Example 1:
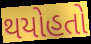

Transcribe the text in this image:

થયોહતો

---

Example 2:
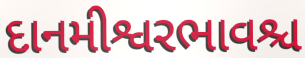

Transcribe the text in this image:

દાનમીશ્વરભાવશ્ચ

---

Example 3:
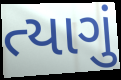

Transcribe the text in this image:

ત્યાગું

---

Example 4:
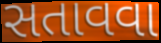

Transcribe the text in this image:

સતાવવા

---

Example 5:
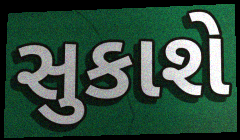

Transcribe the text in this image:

સુકાશે